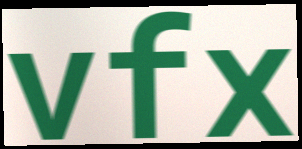
vfx